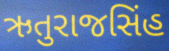
ઋતુરાજસિંહ